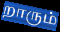
றாரும்